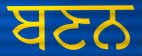
ਬਣਨ